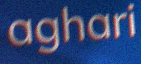
aghari